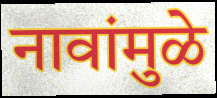
नावांमुळे